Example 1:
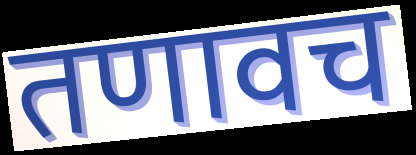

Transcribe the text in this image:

तणावच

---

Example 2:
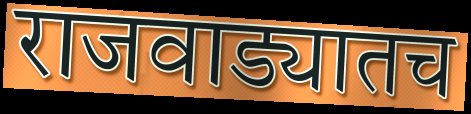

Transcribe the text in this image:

राजवाड्यातच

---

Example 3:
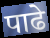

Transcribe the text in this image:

पाढे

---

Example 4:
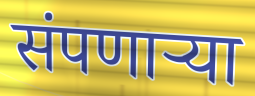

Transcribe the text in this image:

संपणाऱ्या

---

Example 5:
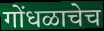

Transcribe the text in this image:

गोंधळाचेच